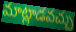
మాట్లాడవచ్చు